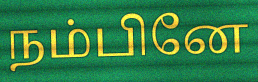
நம்பினே